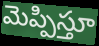
మెప్పిస్తూ